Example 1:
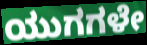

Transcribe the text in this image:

ಯುಗಗಳೇ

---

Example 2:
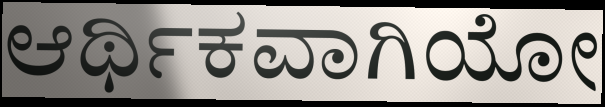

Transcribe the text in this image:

ಆರ್ಥಿಕವಾಗಿಯೋ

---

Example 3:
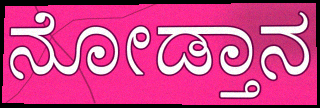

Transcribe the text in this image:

ನೋಡ್ತಾನ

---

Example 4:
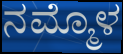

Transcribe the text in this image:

ನಮ್ಮೊಳ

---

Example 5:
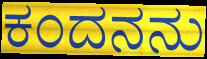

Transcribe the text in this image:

ಕಂದನನು